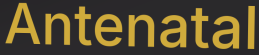
Antenatal